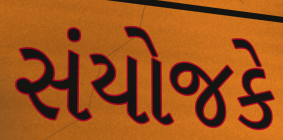
સંયોજકે